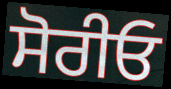
ਸੋਰੀਓ